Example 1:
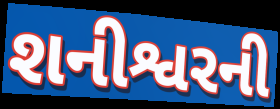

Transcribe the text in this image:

શનીશ્વરની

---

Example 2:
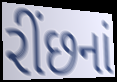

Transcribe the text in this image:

રીંછનાં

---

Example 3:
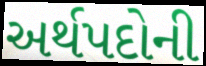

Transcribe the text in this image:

અર્થપદોની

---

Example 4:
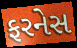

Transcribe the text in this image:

ફરનેસ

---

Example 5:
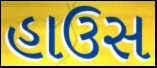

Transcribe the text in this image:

હાઉસ